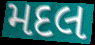
મદલ